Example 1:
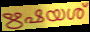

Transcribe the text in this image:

ഋഷയശ്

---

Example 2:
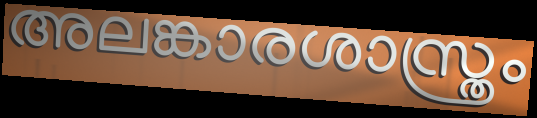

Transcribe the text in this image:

അലങ്കാരശാസ്ത്രം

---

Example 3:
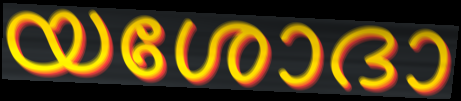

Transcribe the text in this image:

യശോദാ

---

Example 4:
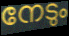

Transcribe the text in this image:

നേടും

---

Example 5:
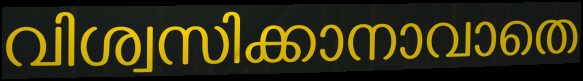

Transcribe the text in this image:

വിശ്വസിക്കാനാവാതെ